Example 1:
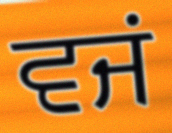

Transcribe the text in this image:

ਵਜਂ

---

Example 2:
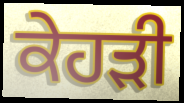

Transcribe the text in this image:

ਕੇਹੜੀ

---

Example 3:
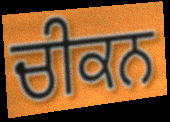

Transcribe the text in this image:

ਚੀਕਨ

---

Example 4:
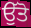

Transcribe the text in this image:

ਉੱਤੋ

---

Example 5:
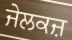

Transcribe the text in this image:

ਜੇਲਕਜ਼